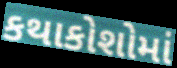
કથાકોશોમાં